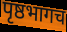
पृष्ठभागच